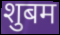
शुबम